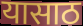
यासाठ